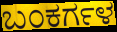
ಬಂಕರ್ಗಳ